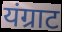
यंग्राट